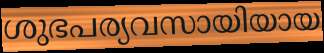
ശുഭപര്യവസായിയായ